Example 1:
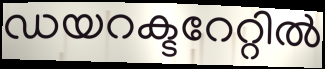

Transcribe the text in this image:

ഡയറക്ടറേറ്റിൽ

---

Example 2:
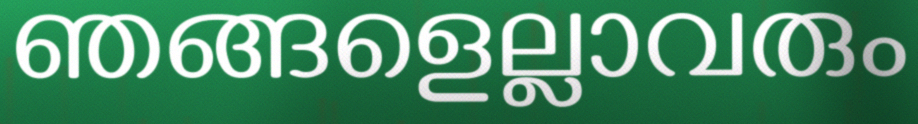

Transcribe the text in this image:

ഞങ്ങളെല്ലാവരും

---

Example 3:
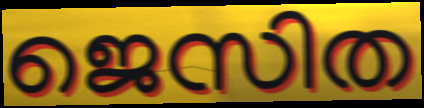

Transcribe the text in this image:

ജെസിത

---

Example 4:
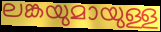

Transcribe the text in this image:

ലങ്കയുമായുള്ള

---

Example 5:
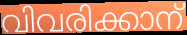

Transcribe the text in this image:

വിവരിക്കാന്